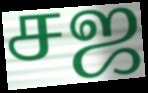
சஜ